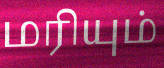
மரியும்